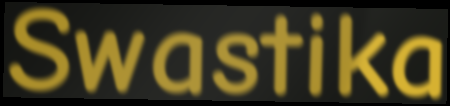
Swastika